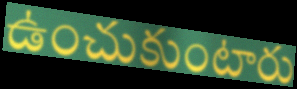
ఉంచుకుంటారు